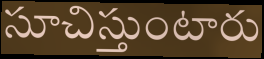
సూచిస్తుంటారు